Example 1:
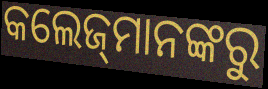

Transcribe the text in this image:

କଲେଜ୍‌ମାନଙ୍କରୁ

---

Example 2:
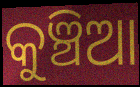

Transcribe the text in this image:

କୁଞ୍ଚିଆ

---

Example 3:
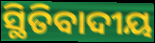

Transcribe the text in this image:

ସ୍ଥିତିବାଦୀୟ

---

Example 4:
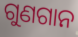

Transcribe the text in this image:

ଗୁଣଗାନ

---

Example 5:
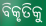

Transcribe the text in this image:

ବିକୃତିକୁ